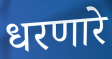
धरणारे